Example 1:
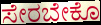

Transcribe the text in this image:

ಸೇರಬೇಕೊ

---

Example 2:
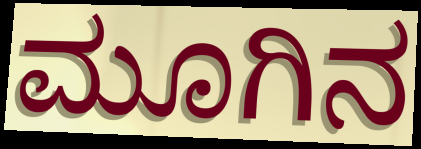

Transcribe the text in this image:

ಮೂಗಿನ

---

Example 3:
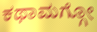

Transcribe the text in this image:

ಕಥಾಮಗ್ಗೋ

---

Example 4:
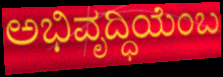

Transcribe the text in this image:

ಅಭಿವೃದ್ಧಿಯೆಂಬ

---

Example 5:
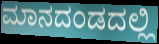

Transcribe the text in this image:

ಮಾನದಂಡದಲ್ಲಿ